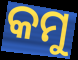
କମୁ